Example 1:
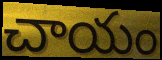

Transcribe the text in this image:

చాయం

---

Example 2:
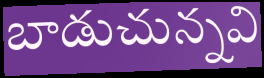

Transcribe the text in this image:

బాడుచున్నవి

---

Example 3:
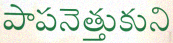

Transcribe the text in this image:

పాపనెత్తుకుని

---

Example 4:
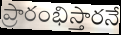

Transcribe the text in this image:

ప్రారంభిస్తారనే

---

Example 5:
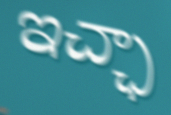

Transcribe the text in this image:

ఇచ్ఛా